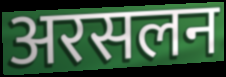
अरसलन